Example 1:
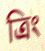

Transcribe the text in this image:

ত্রিং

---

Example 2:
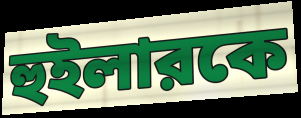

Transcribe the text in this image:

হুইলারকে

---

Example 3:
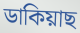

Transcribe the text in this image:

ডাকিয়াছ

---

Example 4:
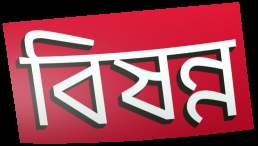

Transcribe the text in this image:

বিষন্ন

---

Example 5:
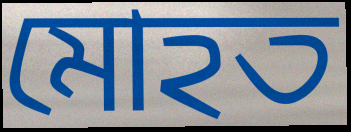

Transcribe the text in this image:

মোহত